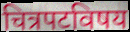
चित्रपटविषय